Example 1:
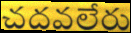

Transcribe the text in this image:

చదవలేరు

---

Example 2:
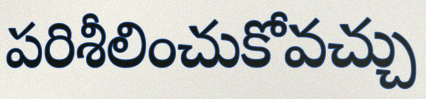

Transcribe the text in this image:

పరిశీలించుకోవచ్చు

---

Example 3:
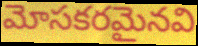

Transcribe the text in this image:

మోసకరమైనవి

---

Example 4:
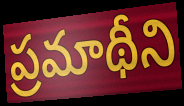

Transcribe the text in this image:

ప్రమాథీని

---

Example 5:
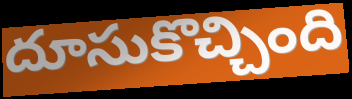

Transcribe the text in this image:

దూసుకొచ్చింది